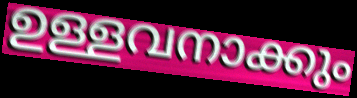
ഉള്ളവനാക്കും